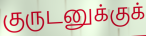
குருடனுக்குக்